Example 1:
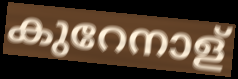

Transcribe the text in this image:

കുറേനാള്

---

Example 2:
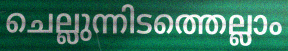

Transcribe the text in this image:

ചെല്ലുന്നിടത്തെല്ലാം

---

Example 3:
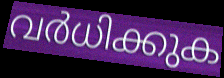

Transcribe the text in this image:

വർധിക്കുക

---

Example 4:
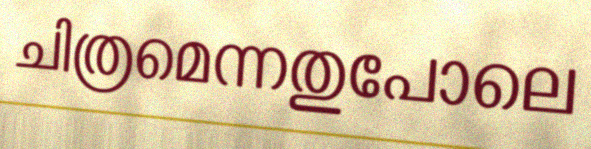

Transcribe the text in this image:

ചിത്രമെന്നതുപോലെ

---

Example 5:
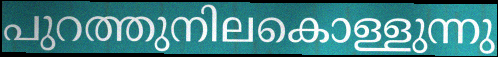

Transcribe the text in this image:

പുറത്തുനിലകൊള്ളുന്നു